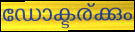
ഡോക്ടര്ക്കും